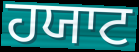
ਹਯਾਟ